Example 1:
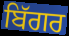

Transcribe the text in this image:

ਬਿੱਗਰ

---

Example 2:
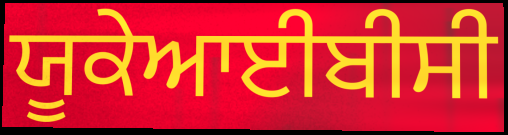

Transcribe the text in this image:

ਯੂਕੇਆਈਬੀਸੀ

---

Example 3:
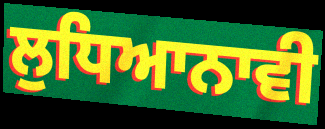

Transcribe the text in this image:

ਲੁਧਿਆਨਾਵੀ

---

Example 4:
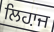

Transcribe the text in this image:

ਲਿਹ਼ਾਜ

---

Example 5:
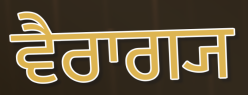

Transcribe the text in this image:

ਵੈਰਾਗ੍ਯ